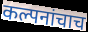
कल्पनांचाच